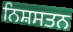
ਨਿਸ਼ਸਤਨ